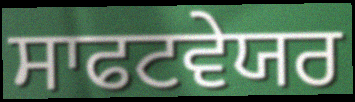
ਸਾਫਟਵੇਯਰ